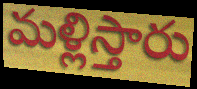
మళ్లిస్తారు